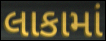
લાકામાં